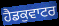
ਹੈਡਕੁਵਾਟਰ